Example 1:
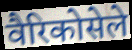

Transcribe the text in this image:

वैरिकोसेले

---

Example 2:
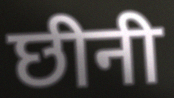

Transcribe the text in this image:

छीनी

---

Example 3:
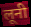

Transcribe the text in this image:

लूनी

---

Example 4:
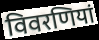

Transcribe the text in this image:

विवरणियां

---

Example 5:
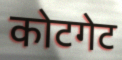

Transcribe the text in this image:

कोटगेट